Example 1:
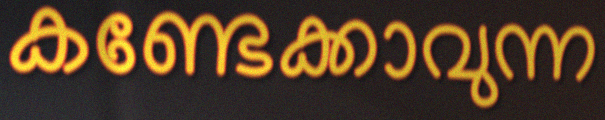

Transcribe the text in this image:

കണ്ടേക്കാവുന്ന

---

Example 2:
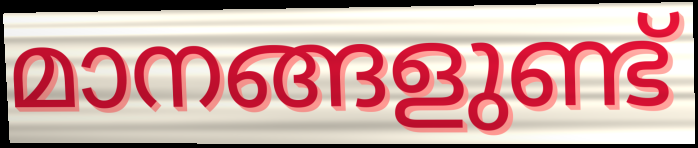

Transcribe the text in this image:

മാനങ്ങളുണ്ട്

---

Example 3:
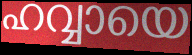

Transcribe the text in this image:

ഹവ്വായെ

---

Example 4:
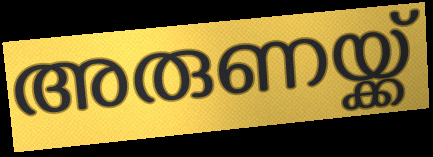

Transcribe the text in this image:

അരുണയ്ക്ക്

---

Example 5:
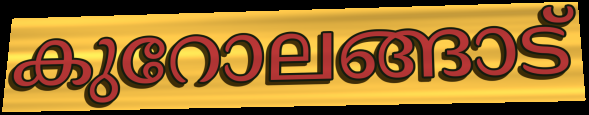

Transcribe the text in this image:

കുറോലങ്ങാട്